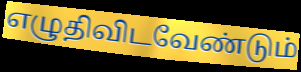
எழுதிவிடவேண்டும்